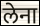
लेना